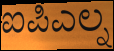
ಐಪಿಎಲ್ನ